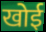
खोई